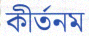
কীর্তনম